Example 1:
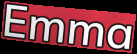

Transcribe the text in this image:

Emma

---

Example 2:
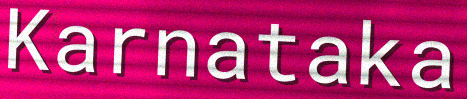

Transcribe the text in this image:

Karnataka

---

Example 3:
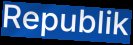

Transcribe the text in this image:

Republik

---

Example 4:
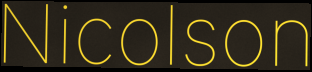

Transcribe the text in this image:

Nicolson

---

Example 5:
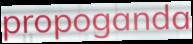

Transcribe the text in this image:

propoganda